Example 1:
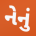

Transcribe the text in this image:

નેનું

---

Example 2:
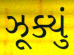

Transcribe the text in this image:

ઝૂક્યું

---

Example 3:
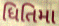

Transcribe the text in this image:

ધિતિમા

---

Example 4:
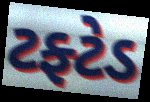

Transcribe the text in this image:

ટફ્ટેડ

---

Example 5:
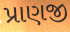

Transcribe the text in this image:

પ્રાણજી